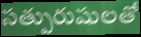
సత్పురుషులతో